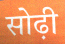
सोढ़ी